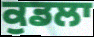
ਕੁਡਲਾ